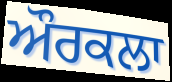
ਔਰਕਲਾ